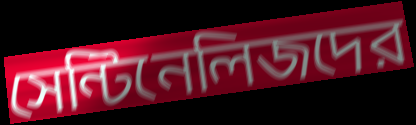
সেন্টিনেলিজদের